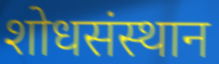
शोधसंस्थान